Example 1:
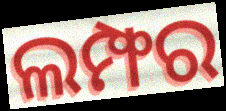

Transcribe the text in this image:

ଲମ୍ଫର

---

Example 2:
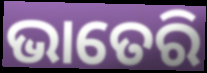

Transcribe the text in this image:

ଭାତେରି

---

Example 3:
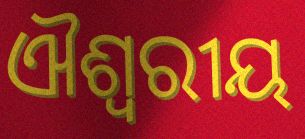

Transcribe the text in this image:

ଐଶ୍ୱରୀୟ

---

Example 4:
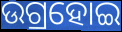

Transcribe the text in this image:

ଉଗ୍ରହୋଇ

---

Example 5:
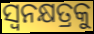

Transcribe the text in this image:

ସ୍ୱନକ୍ଷତ୍ରକୁ